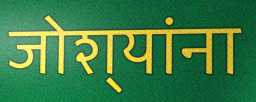
जोश्यांना